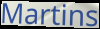
Martins